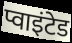
प्वाइंटेड